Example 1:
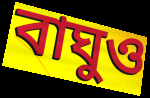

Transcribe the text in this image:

বাঘুও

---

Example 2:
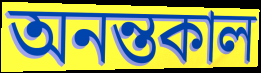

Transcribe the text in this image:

অনন্তকাল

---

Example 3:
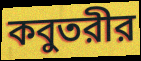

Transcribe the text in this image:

কবুতরীর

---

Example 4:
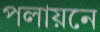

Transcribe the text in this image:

পলায়নে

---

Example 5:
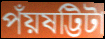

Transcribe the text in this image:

পঁয়ষট্টিটা